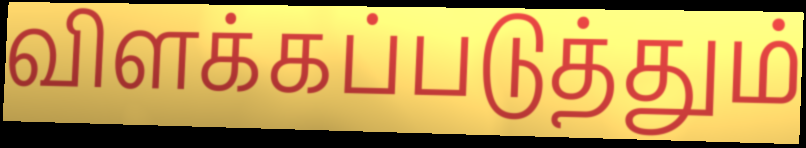
விளக்கப்படுத்தும்